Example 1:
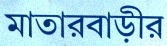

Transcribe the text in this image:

মাতারবাড়ীর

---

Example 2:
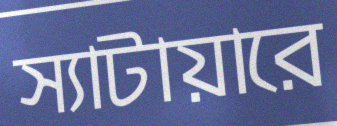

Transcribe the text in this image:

স্যাটায়ারে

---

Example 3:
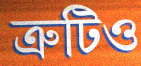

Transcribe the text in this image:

ত্রুটিও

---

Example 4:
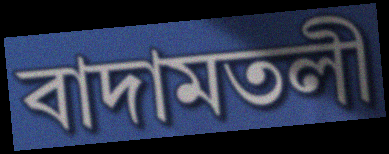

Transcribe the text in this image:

বাদামতলী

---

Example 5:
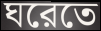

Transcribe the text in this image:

ঘরেতে